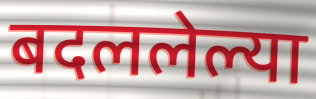
बदललेल्या